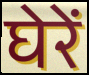
घेरें